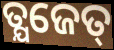
ତ୍ଯଜେତ୍